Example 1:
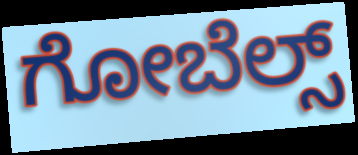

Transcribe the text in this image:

ಗೋಬೆಲ್ಸ್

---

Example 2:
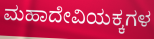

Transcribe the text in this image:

ಮಹಾದೇವಿಯಕ್ಕಗಳ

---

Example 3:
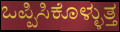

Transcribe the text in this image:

ಒಪ್ಪಿಸಿಕೊಳ್ಳುತ್ತ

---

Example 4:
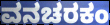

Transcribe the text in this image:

ವನಚರಕಂ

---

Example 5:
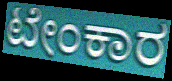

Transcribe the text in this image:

ಟೇಂಕಾರ